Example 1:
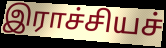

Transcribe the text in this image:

இராச்சியச்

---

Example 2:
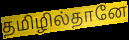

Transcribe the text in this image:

தமிழில்தானே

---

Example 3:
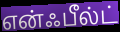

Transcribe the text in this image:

என்ஃபீல்ட்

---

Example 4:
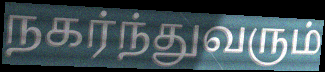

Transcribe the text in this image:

நகர்ந்துவரும்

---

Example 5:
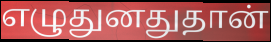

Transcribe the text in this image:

எழுதுனதுதான்